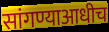
सांगण्याआधीच